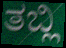
ತಬ್ಲಿ